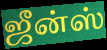
ஜீன்ஸ்